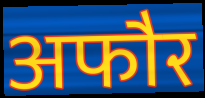
अफौर